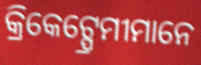
କ୍ରିକେଟ୍ପ୍ରେମୀମାନେ